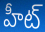
హీట్